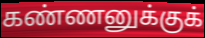
கண்ணனுக்குக்